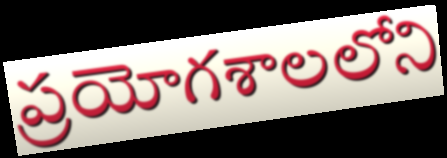
ప్రయోగశాలలోని